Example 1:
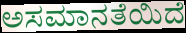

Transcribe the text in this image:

ಅಸಮಾನತೆಯಿದೆ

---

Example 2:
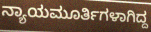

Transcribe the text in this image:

ನ್ಯಾಯಮೂರ್ತಿಗಳಾಗಿದ್ದ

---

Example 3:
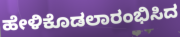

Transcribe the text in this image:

ಹೇಳಿಕೊಡಲಾರಂಭಿಸಿದ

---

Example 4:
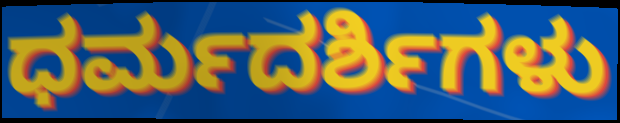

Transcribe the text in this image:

ಧರ್ಮದರ್ಶಿಗಳು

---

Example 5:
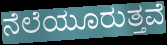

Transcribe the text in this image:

ನೆಲೆಯೂರುತ್ತವೆ